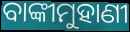
ବାଙ୍କୀମୁହାଣୀ